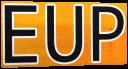
EUP